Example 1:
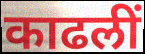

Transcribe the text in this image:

काढलीं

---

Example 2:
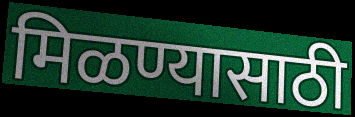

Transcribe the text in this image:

मिळण्यासाठी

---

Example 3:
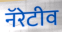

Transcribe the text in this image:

नॅरेटीव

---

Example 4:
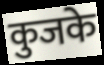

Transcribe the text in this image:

कुजके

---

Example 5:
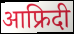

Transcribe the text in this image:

आफ्रिदी